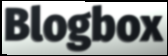
Blogbox